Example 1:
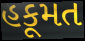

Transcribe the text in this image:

હકૂમત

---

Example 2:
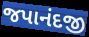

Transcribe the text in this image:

જપાનંદજી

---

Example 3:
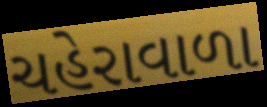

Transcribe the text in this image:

ચહેરાવાળા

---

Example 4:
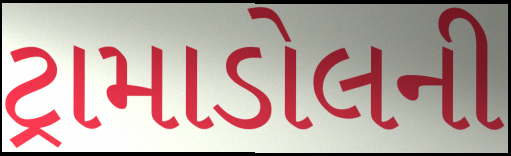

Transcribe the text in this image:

ટ્રામાડોલની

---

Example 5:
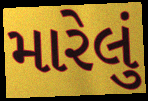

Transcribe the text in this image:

મારેલું